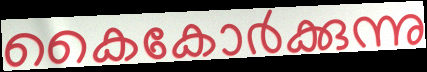
കൈകോർക്കുന്നു